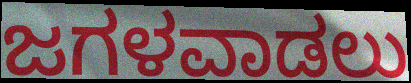
ಜಗಳವಾಡಲು